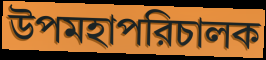
উপমহাপরিচালক